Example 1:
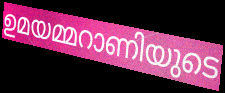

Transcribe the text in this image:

ഉമയമ്മറാണിയുടെ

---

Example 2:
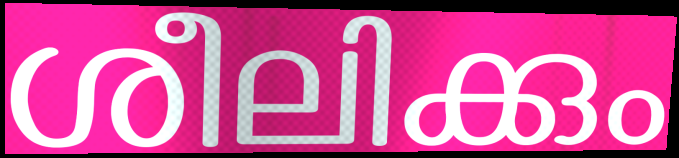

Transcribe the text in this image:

ശീലിക്കും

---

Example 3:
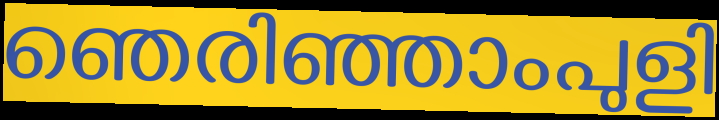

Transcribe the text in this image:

ഞെരിഞ്ഞാംപുളി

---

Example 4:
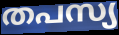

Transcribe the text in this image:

തപസ്യ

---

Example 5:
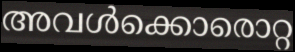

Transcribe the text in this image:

അവൾക്കൊരൊറ്റ